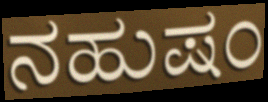
ನಹುಷಂ